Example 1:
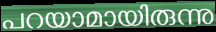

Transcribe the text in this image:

പറയാമായിരുന്നു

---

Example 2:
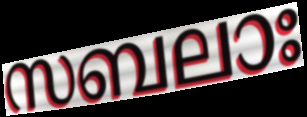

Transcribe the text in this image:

സബലാഃ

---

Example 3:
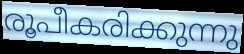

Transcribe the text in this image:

രൂപീകരിക്കുന്നു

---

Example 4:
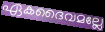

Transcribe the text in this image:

ഏകദൈവമല്ലേ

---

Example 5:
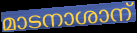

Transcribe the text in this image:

മാടനാശാന്